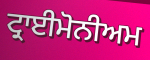
ਟ੍ਰਾਈਮੋਨੀਅਮ